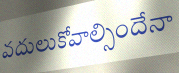
వదులుకోవాల్సిందేనా